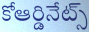
కోఆర్డినేట్స్